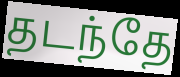
தடந்தே